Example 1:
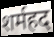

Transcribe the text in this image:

शर्महद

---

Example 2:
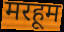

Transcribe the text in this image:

मरहूम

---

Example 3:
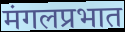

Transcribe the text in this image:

मंगलप्रभात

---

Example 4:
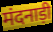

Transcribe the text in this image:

मंदनाड़ी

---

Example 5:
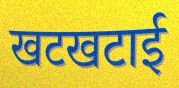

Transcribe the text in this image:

खटखटाई